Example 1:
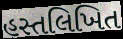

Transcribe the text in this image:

હસ્તલિખિત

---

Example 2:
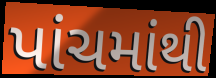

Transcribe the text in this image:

પાંચમાંથી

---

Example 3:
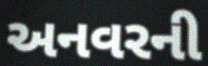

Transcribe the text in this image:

અનવરની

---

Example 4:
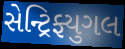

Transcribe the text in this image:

સેન્ટ્રિફ્યુગલ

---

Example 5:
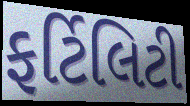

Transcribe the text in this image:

ફર્ટિલિટી